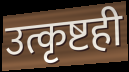
उत्कृष्टही